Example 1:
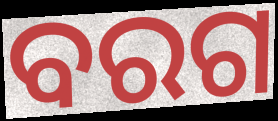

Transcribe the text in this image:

ବରଗ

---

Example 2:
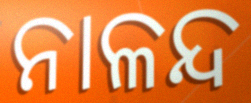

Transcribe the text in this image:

ନାଳନ୍ଦ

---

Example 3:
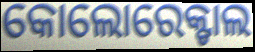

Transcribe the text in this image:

କୋଲୋରେକ୍ଟାଲ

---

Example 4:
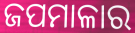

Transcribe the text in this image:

ଜପମାଳାର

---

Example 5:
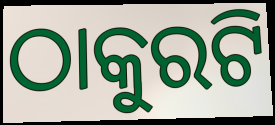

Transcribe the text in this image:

ଠାକୁରଟି